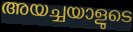
അയച്ചയാളുടെ